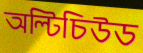
অল্টিচিউড